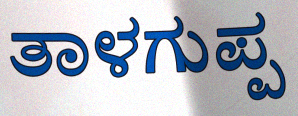
ತಾಳಗುಪ್ಪ